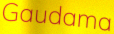
Gaudama